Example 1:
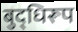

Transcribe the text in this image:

बुद्धिरूप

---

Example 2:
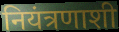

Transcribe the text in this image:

नियंत्रणाशी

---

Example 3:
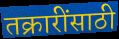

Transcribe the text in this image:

तक्रारींसाठी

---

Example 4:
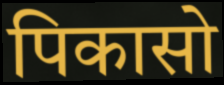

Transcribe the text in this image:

पिकासो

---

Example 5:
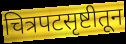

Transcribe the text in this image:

चित्रपटसृष्टीतून